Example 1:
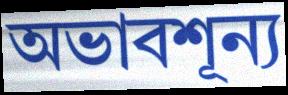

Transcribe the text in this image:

অভাবশূন্য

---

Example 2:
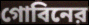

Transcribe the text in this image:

গোবিনের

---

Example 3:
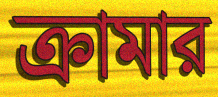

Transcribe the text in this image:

ক্রামার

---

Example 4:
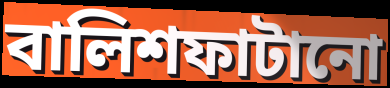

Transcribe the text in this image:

বালিশফাটানো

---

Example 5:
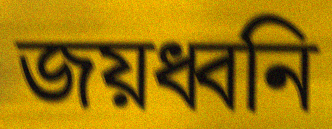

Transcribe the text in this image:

জয়ধ্বনি